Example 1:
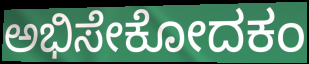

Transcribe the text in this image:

ಅಭಿಸೇಕೋದಕಂ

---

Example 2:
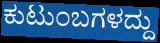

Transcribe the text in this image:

ಕುಟುಂಬಗಳದ್ದು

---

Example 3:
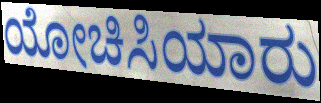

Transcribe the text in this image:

ಯೋಚಿಸಿಯಾರು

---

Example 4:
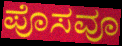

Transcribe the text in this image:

ಪೊಸವೂ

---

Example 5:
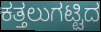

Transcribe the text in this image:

ಕತ್ತಲುಗಟ್ಟಿದ